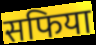
सफिया